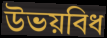
উভয়বিধ